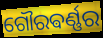
ଗୌରଵର୍ଣ୍ଣର